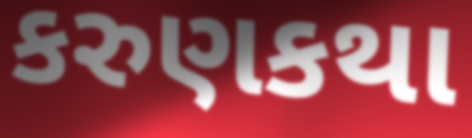
કરુણકથા